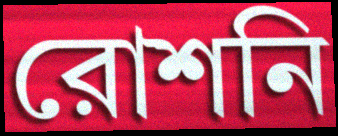
রোশনি